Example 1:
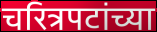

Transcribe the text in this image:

चरित्रपटांच्या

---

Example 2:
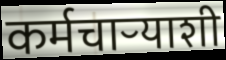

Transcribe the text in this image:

कर्मचाऱ्याशी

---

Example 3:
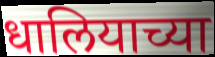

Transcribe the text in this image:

धालियाच्या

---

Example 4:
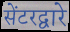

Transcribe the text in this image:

सेंटरद्वारे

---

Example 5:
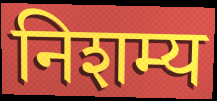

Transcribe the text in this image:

निशम्य